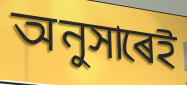
অনুসাৰেই